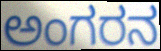
ಅಂಗರನ